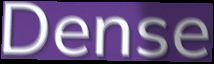
Dense